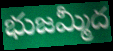
భుజమ్మీద